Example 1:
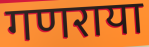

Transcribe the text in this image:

गणराया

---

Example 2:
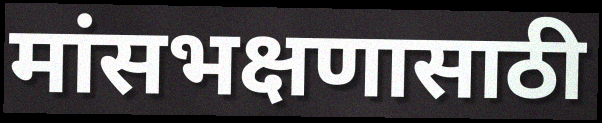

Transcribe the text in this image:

मांसभक्षणासाठी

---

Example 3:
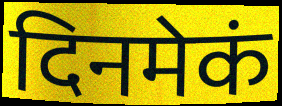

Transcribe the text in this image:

दिनमेकं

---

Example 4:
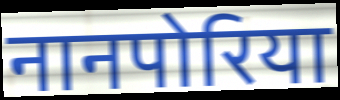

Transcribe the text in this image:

नानपोरिया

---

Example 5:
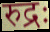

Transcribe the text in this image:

रुद्रः